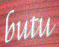
butu